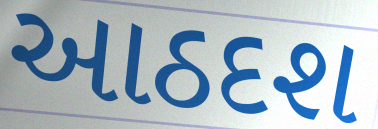
આઠદશ